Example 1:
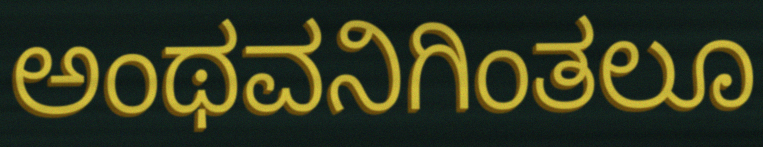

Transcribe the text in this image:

ಅಂಥವನಿಗಿಂತಲೂ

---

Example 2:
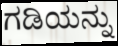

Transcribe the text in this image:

ಗಡಿಯನ್ನು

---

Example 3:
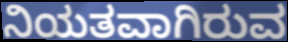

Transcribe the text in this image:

ನಿಯತವಾಗಿರುವ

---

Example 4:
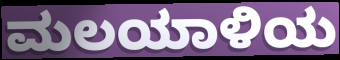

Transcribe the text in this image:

ಮಲಯಾಳಿಯ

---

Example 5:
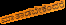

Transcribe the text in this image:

ಮಾತಾಡಬೇಕೆಂದರೆ